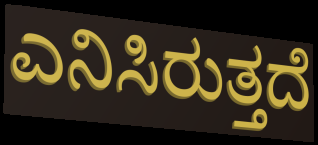
ಎನಿಸಿರುತ್ತದೆ